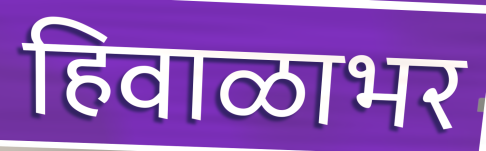
हिवाळाभर